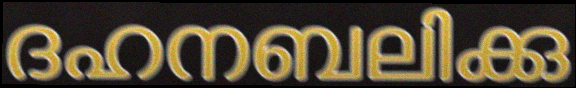
ദഹനബലിക്കു